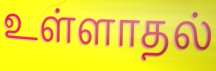
உள்ளாதல்